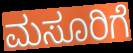
ಮಸೂರಿಗೆ